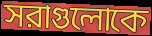
সরাগুলোকে